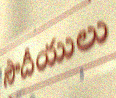
సౌదీయులు